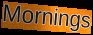
Mornings